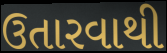
ઉતારવાથી